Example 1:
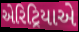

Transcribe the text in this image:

એરિટ્રિયાએ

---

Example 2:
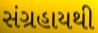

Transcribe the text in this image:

સંગ્રહાયથી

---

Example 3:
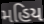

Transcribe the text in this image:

મહિય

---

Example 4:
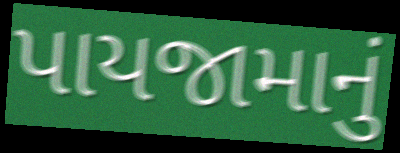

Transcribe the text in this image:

પાયજામાનું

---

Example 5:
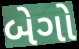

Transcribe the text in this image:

બેગો